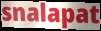
snalapat